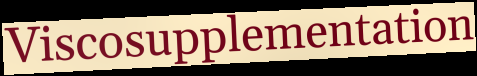
Viscosupplementation